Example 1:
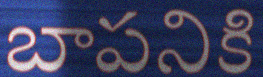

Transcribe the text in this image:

బాపనికి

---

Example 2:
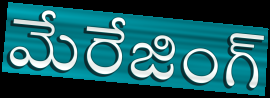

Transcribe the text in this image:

మేరేజింగ్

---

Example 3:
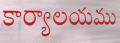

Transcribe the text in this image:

కార్యాలయము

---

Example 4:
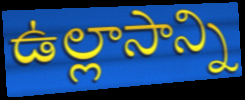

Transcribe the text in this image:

ఉల్లాసాన్ని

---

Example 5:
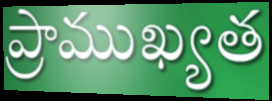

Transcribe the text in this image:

ప్రాముఖ్యత